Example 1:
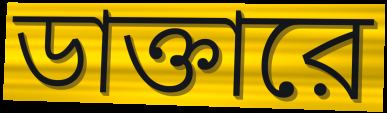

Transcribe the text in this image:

ডাক্তারে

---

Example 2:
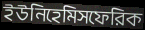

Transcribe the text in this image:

ইউনিহেমিসফেরিক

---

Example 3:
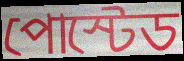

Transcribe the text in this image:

পোস্টেড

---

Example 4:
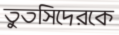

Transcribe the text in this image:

তুতসিদেরকে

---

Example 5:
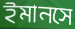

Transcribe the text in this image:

ইমানসে